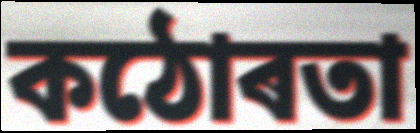
কঠোৰতা